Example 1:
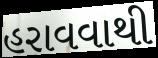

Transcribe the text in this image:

હરાવવાથી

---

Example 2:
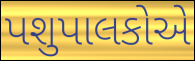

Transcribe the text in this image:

પશુપાલકોએ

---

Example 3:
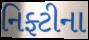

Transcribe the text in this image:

નિફ્ટીના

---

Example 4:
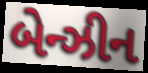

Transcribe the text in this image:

બેન્ઝીન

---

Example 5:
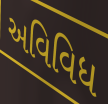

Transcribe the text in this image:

અવિવિધ